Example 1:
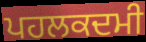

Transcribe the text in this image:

ਪਹਲਕਦਮੀ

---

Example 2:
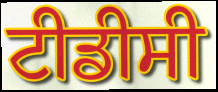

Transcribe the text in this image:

ਟੀਡੀਸੀ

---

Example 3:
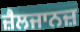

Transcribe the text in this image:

ਜ਼ੈਲਜਾਨਜ਼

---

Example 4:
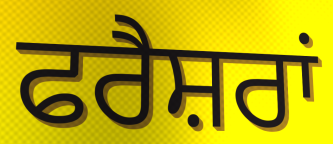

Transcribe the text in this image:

ਫਰੈਸ਼ਰਾਂ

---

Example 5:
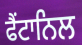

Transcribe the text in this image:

ਫੈਂਟਾਨਿਲ